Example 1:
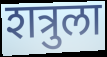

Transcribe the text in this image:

शत्रुला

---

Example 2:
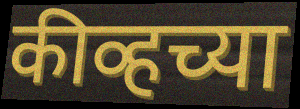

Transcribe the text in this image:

कीव्हच्या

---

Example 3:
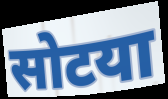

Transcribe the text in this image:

सोटया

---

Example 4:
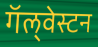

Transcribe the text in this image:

गॅल्वेस्टन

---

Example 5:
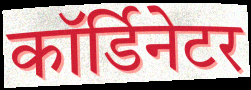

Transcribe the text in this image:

कॉर्डिनेटर